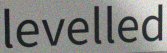
levelled